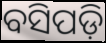
ବସିପଡ଼ି